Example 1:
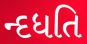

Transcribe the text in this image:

ન્દધતિ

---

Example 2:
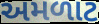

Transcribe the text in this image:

અમળાટ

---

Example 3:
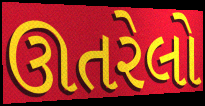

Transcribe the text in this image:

ઊતરેલો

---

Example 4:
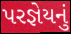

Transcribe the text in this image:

પરજ્ઞેયનું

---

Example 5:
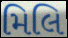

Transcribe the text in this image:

મિલિ